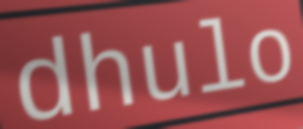
dhulo